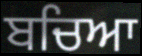
ਬਚਿਆ